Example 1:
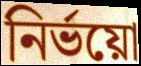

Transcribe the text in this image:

নির্ভয়ো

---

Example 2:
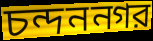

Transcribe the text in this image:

চন্দননগর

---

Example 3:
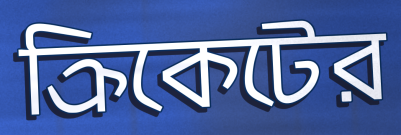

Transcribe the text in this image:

ক্রিকেটের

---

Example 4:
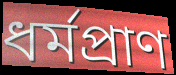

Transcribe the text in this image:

ধর্মপ্রাণ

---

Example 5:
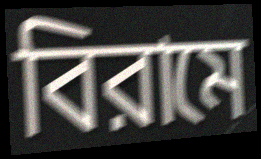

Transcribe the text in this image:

বিরামে